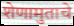
शेणामुताचे